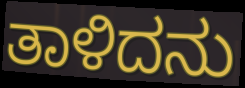
ತಾಳಿದನು